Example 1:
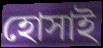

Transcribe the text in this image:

হোসাই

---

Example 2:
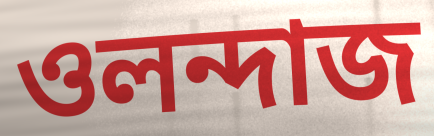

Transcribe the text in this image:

ওলন্দাজ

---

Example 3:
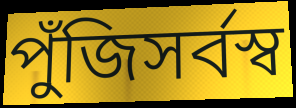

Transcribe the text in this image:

পুঁজিসর্বস্ব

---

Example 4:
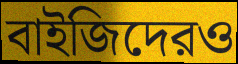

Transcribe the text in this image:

বাইজিদেরও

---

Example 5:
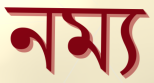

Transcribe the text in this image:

নম্য